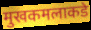
मुखकमलाकडे